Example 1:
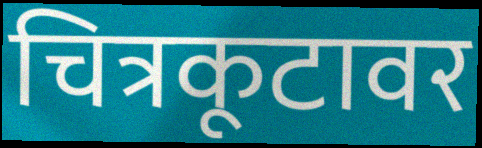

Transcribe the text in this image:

चित्रकूटावर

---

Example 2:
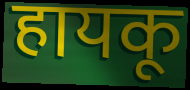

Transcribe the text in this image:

हायकू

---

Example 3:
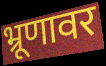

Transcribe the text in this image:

भ्रूणावर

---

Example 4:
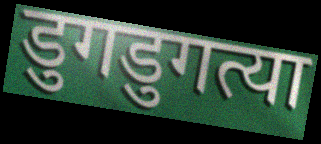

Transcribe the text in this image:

डुगडुगत्या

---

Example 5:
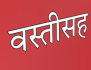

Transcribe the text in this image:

वस्तीसह